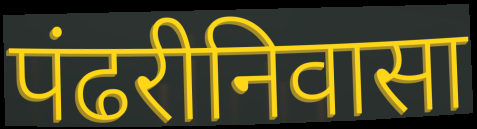
पंढरीनिवासा